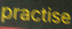
practise